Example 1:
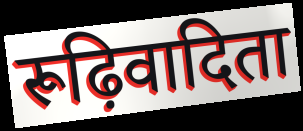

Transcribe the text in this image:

रूढ़िवादिता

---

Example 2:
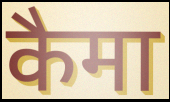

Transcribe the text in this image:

कैमा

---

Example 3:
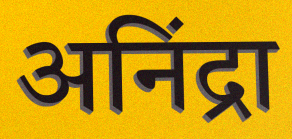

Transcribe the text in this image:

अनिंद्रा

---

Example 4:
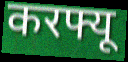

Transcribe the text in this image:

करफ्यू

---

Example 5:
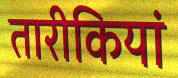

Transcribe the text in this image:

तारीकियां